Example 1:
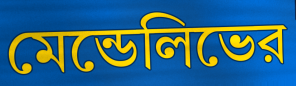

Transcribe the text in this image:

মেন্ডেলিভের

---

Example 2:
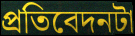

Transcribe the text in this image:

প্রতিবেদনটা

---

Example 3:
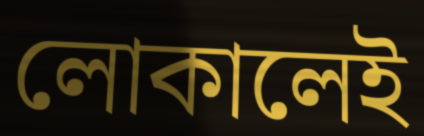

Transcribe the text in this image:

লোকালেই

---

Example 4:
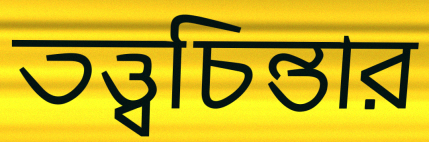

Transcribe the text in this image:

তত্ত্বচিন্তার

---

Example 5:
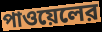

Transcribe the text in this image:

পাওয়েলের